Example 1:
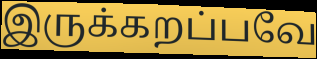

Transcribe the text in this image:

இருக்கறப்பவே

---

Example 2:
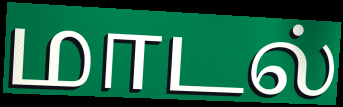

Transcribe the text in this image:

மாடல்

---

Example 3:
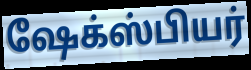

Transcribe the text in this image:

ஷேக்ஸ்பியர்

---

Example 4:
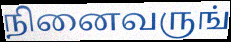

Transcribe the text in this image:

நினைவருங்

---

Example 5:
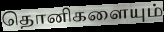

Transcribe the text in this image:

தொனிகளையும்